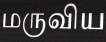
மருவிய